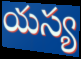
యస్య